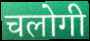
चलोगी